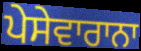
ਪੇਸੇਵਾਰਾਨਾ